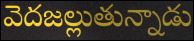
వెదజల్లుతున్నాడు